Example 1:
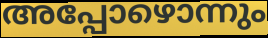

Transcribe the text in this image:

അപ്പോഴൊന്നും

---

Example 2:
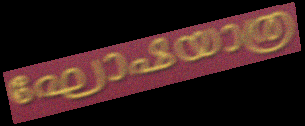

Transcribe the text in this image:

ഘോഷയാത്ര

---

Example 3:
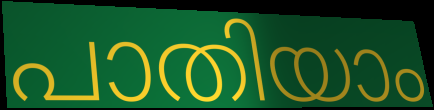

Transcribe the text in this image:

പാതിയാം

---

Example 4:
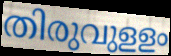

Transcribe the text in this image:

തിരുവുളളം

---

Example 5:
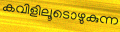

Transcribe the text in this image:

കവിളിലൂടൊഴുകുന്ന